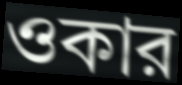
ওকার